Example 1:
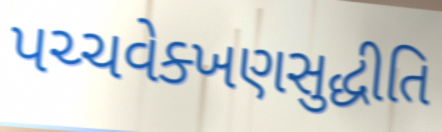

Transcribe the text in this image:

પચ્ચવેક્ખણસુદ્ધીતિ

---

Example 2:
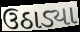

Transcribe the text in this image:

ઉઠાડ્યા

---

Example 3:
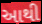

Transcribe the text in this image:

આથી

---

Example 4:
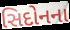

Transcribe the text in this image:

સિદોનના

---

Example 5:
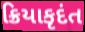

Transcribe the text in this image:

ક્રિયાકૃદંત